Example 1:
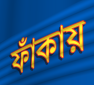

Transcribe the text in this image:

ফাঁকায়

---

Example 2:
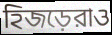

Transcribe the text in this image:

হিজড়েরাও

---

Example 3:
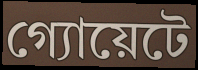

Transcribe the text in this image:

গ্যোয়েটে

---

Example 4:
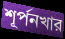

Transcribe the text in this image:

শূর্পনখার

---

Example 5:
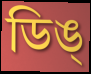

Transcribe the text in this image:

ডিঙ্